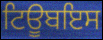
ਟਿਊਬਇਸ